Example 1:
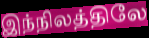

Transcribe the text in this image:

இந்நிலத்திலே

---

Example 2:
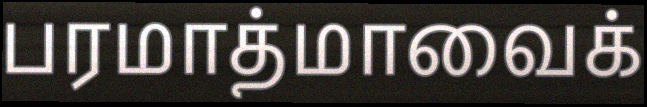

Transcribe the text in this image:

பரமாத்மாவைக்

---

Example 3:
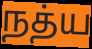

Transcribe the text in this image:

நத்ய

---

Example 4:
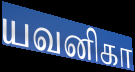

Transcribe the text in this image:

யவனிகா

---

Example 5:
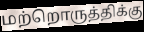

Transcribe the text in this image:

மற்றொருத்திக்கு